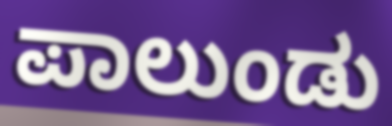
ಪಾಲುಂಡು